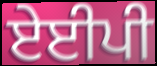
ਏਈਪੀ